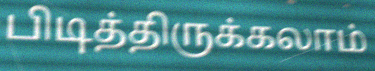
பிடித்திருக்கலாம்